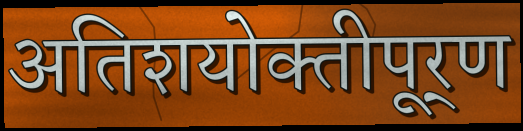
अतिशयोक्‍तीपूर्ण